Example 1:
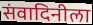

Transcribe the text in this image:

संवादिनीला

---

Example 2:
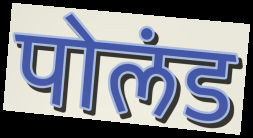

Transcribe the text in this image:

पोलंड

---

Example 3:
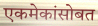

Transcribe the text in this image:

एकमेकांसोबत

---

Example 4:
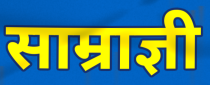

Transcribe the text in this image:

साम्राज्ञी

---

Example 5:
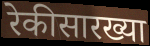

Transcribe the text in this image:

रेकीसारख्या